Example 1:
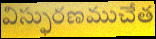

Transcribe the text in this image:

విస్ఫురణముచేత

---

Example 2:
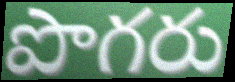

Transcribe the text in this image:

పొగరు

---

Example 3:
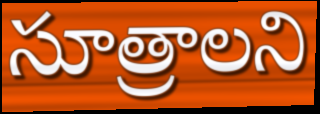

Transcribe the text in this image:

సూత్రాలని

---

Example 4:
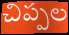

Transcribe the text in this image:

చిప్పల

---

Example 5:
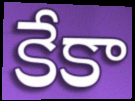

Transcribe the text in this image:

కేకా